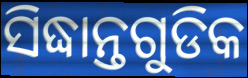
ସିଦ୍ଧାନ୍ତଗୁଡିକ